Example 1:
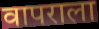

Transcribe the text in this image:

वापराला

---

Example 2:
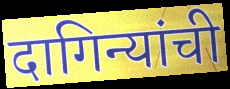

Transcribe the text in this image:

दागिन्यांची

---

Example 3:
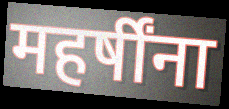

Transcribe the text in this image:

महर्षींना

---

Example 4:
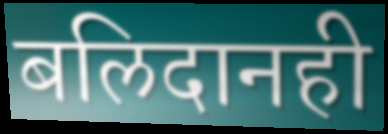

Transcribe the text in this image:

बलिदानही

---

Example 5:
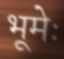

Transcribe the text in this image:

भूमेः